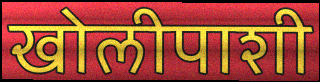
खोलीपाशी